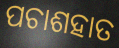
ପଚାଶହାତ